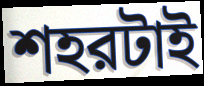
শহরটাই